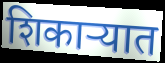
शिकाऱ्यात